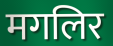
मगलिर